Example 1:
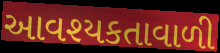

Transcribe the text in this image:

આવશ્યકતાવાળી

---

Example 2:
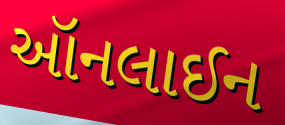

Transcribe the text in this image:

ઑનલાઈન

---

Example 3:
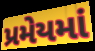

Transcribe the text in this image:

પ્રમેયમાં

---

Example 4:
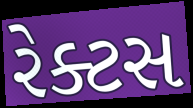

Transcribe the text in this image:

રેક્ટસ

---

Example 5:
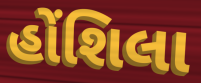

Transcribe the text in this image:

હોંશિલા